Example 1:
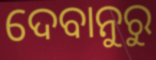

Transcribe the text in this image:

ଦେବାନୁରୁ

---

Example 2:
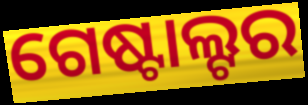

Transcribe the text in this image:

ଗେଷ୍ଟାଲ୍ଟର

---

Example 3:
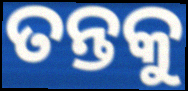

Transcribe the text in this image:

ତନ୍ତକୁ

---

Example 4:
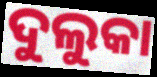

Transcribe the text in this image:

ଦୁଲୁକା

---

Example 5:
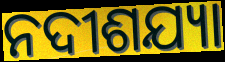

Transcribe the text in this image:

ନଦୀଶଯ୍ୟା